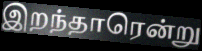
இறந்தாரென்று